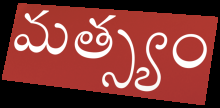
మత్స్యం